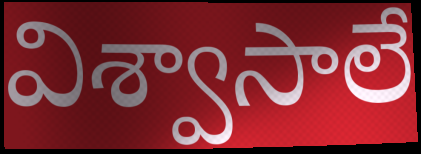
విశ్వాసాలే